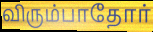
விரும்பாதோர்